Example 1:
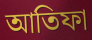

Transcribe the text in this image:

আতিফা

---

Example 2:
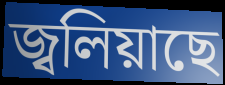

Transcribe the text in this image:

জ্বলিয়াছে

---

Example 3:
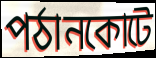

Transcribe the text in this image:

পঠানকোটে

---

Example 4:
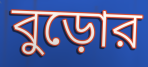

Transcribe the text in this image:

বুড়োর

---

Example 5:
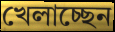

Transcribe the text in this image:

খেলাচ্ছেন